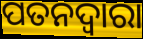
ପତନଦ୍ୱାରା